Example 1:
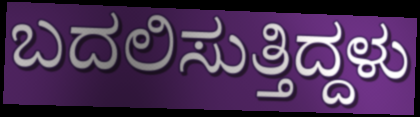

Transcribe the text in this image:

ಬದಲಿಸುತ್ತಿದ್ದಳು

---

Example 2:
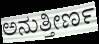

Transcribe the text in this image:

ಅನುತ್ತೀರ್ಣ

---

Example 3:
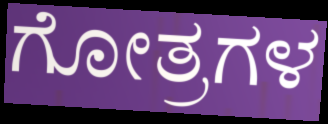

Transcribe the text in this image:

ಗೋತ್ರಗಳ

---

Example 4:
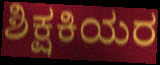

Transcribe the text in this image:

ಶಿಕ್ಷಕಿಯರ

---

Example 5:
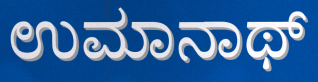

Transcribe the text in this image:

ಉಮಾನಾಥ್